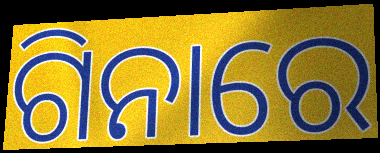
ଗିନାରେ